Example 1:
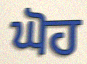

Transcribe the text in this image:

ਘੋਹ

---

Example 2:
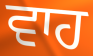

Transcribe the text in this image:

ਵਾਹ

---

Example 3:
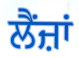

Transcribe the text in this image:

ਲੈਂਜ਼ਾਂ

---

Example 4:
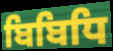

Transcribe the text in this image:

ਬਿਬਿਧਿ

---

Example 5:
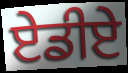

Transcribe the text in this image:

ਏਡੀਏ